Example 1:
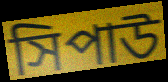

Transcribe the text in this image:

সিপাউ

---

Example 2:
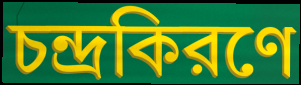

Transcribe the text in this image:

চন্দ্রকিরণে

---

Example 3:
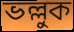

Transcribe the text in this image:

ভল্লুক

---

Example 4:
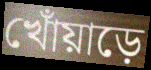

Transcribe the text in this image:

খোঁয়াড়ে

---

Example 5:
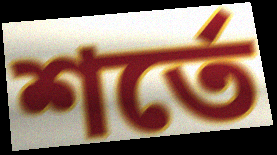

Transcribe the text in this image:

শর্তে